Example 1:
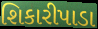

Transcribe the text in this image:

શિકારીપાડા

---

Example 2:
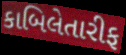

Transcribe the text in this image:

કાબિલેતારીફ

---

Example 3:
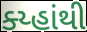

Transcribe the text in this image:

ક્ય્હાંથી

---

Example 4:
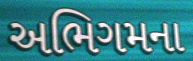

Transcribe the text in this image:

અભિગમના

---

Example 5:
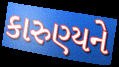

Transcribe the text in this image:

કારુણ્યને